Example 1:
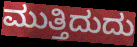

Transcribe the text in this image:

ಮುತ್ತಿದುದು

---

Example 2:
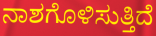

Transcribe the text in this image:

ನಾಶಗೊಳಿಸುತ್ತಿದೆ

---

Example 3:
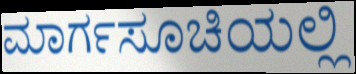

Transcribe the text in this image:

ಮಾರ್ಗಸೂಚಿಯಲ್ಲಿ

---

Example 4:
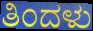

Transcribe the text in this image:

ತಿಂದಳು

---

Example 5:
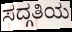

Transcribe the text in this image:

ಸದ್ಗತಿಯ